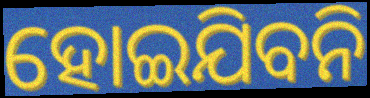
ହୋଇଯିବନି